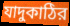
যাদুকাঠির